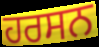
ਹਰਸਨ